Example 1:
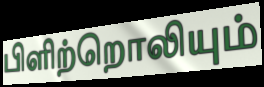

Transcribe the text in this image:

பிளிற்றொலியும்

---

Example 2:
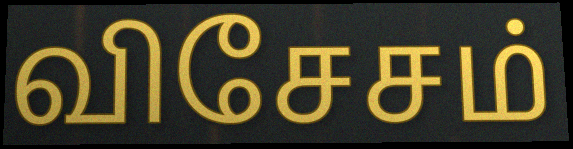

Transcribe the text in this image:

விசேசம்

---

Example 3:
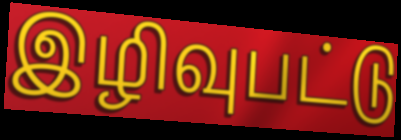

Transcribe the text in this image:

இழிவுபட்டு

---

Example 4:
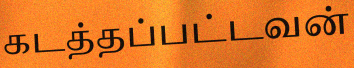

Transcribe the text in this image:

கடத்தப்பட்டவன்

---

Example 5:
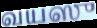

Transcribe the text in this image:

வயஸு